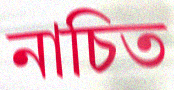
নাচিত